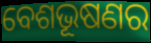
ବେଶଭୂଷଣର